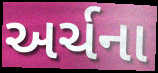
અર્ચના